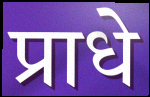
प्राधे